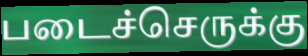
படைச்செருக்கு